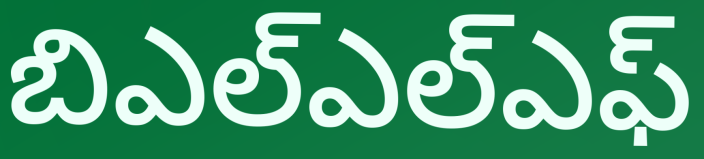
బిఎల్ఎల్ఎఫ్